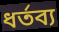
ধর্তব্য